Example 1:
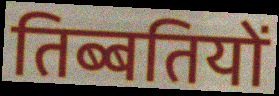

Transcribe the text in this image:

तिब्बतियों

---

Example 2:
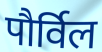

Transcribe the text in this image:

पौर्विल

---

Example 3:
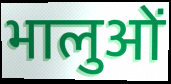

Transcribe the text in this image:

भालुओं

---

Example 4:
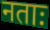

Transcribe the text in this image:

नताः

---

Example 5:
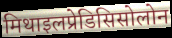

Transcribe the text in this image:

मिथाइलप्रेडिसिसोलोन